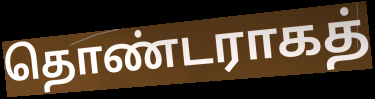
தொண்டராகத்